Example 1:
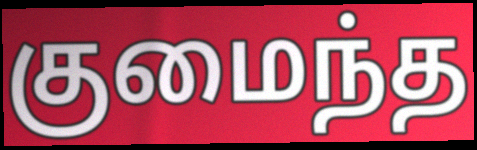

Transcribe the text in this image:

குமைந்த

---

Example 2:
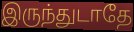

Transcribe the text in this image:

இருந்துடாதே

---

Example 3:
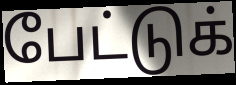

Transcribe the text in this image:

பேட்டுக்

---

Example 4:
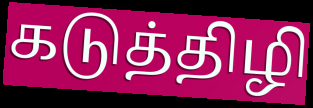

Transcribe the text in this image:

கடுத்திழி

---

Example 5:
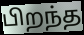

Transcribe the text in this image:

பிறந்த